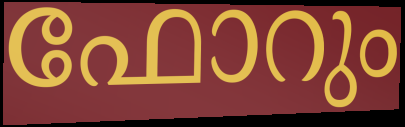
ഫോറും